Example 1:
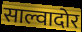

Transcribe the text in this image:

साल्वादोर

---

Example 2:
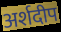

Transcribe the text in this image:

अर्शदीप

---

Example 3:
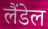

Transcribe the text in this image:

लैंडेल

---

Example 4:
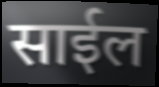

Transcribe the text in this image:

साईल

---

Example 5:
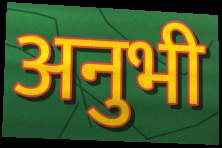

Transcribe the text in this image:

अनुभी